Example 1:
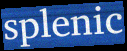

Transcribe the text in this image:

splenic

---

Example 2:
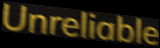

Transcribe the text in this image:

Unreliable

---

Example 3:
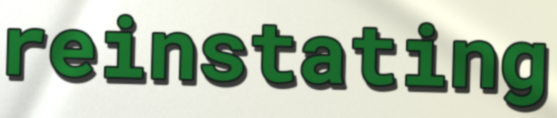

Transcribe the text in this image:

reinstating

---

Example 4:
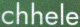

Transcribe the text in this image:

chhele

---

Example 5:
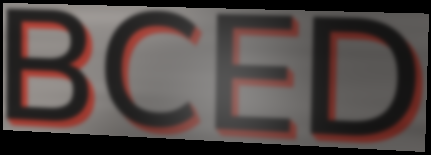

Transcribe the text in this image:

BCED